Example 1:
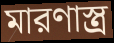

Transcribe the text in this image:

মারণাস্ত্র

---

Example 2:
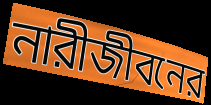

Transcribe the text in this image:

নারীজীবনের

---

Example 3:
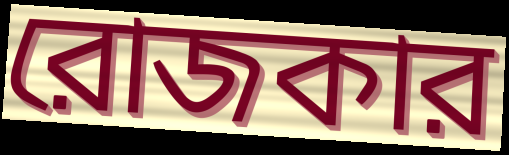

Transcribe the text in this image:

রোজকার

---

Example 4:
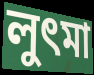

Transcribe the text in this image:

লুৎমা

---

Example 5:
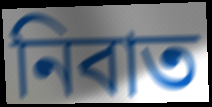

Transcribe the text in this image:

নিবাত